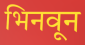
भिनवून